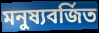
মনুষ্যবর্জিত